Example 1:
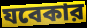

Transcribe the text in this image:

যবেকার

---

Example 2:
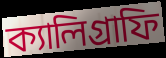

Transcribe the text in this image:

ক্যালিগ্রাফি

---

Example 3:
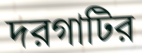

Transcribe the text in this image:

দরগাটির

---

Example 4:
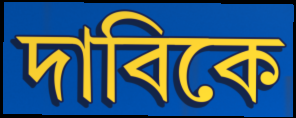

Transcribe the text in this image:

দাবিকে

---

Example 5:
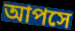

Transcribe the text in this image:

আপসে